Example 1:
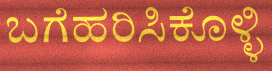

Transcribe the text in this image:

ಬಗೆಹರಿಸಿಕೊಳ್ಳಿ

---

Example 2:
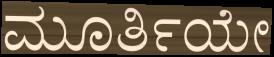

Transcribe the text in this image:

ಮೂರ್ತಿಯೇ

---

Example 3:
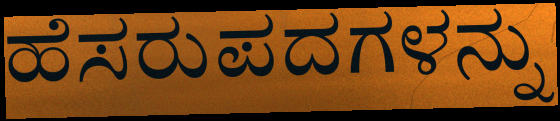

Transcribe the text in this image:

ಹೆಸರುಪದಗಳನ್ನು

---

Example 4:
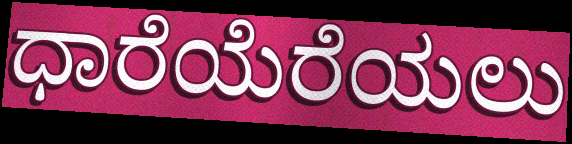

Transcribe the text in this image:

ಧಾರೆಯೆರೆಯಲು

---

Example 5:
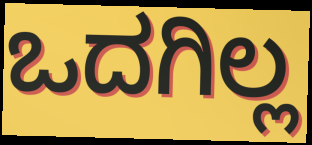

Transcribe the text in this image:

ಒದಗಿಲ್ಲ